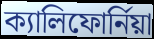
ক্যালিফোর্নিয়া